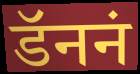
डॅननं